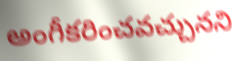
అంగీకరించవచ్చునని